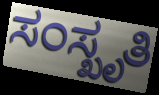
ಸಂಸ್ಖೃತಿ